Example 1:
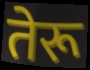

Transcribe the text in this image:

तेरू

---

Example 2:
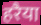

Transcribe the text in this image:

हरैया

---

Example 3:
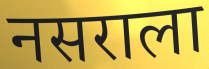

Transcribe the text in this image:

नसराला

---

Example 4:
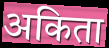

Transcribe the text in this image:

अकिता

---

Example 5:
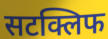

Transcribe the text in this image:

सटक्लिफ